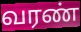
வரண்